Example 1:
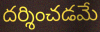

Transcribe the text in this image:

దర్శించడమే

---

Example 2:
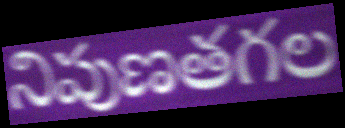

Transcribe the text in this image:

నిపుణతగల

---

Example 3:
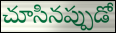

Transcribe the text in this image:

చూసినప్పుడో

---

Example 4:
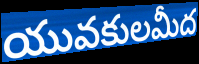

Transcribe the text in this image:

యువకులమీద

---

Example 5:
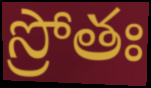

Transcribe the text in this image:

స్రోతః